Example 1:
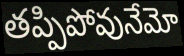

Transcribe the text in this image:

తప్పిపోవునేమో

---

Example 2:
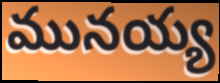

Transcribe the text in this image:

మునయ్య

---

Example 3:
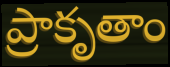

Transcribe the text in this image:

ప్రాకృతాం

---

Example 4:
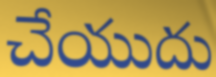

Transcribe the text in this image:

చేయుదు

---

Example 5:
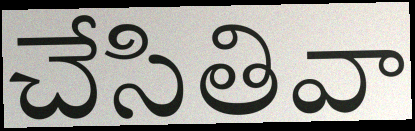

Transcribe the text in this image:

చేసితివా